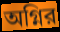
অগ্নির